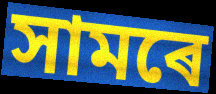
সামৰে